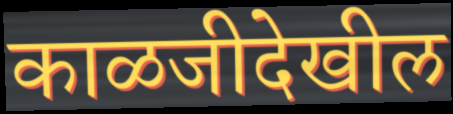
काळजीदेखील